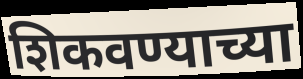
शिकवण्याच्या